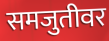
समजुतीवर